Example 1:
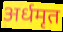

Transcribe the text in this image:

अर्धमृत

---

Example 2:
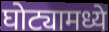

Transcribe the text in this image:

घोट्यामध्ये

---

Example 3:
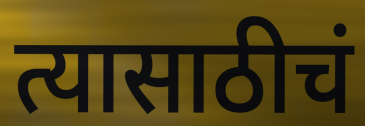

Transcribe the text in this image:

त्यासाठीचं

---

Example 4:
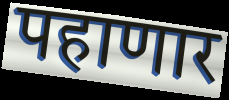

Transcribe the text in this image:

पहाणार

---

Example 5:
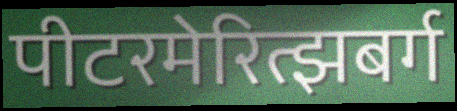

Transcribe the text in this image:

पीटरमेरित्झबर्ग